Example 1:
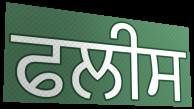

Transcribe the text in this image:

ਫਲੀਸ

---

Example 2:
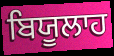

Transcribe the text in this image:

ਬਿਯੂਲਾਹ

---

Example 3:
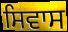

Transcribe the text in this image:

ਸਿਵਾਸ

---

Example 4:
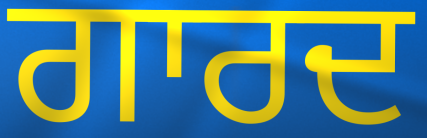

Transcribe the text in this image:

ਗਾਰਦ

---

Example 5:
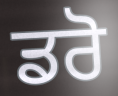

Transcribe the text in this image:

ਡਰੋ